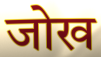
जोख